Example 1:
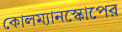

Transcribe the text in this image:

কোলম্যানস্কোপের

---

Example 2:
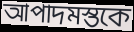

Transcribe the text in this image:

আপাদমস্তকে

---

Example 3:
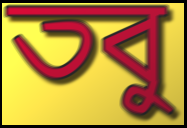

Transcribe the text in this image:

তবু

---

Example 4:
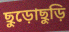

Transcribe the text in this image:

ছুড়োছুড়ি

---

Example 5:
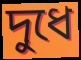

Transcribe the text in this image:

দুধে